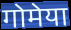
गोमेया